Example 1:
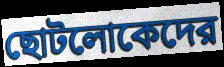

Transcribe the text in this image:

ছোটলোকেদের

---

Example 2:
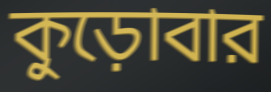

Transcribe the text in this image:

কুড়োবার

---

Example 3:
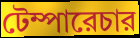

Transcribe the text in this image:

টেম্পারেচার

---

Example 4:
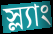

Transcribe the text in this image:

স্ল্যাং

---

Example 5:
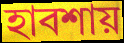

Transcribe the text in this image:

হাবশায়